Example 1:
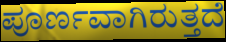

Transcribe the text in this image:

ಪೂರ್ಣವಾಗಿರುತ್ತದೆ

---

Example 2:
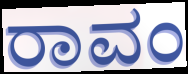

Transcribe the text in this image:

ರಾವಂ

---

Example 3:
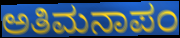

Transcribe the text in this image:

ಅತಿಮನಾಪಂ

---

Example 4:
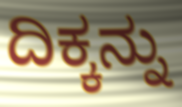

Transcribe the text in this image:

ದಿಕ್ಕನ್ನು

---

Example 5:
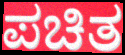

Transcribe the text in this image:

ಪಚಿತ